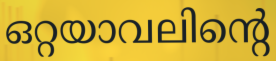
ഒറ്റയാവലിന്റെ